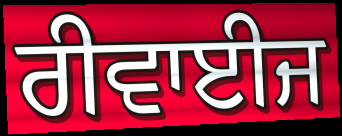
ਰੀਵਾਈਜ